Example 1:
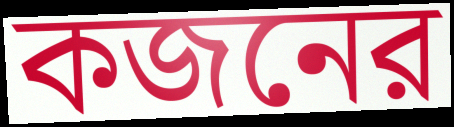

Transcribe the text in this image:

কজনের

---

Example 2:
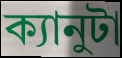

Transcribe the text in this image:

ক্যানুটা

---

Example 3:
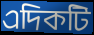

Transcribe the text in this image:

এদিকটি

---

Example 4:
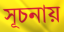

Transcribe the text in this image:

সূচনায়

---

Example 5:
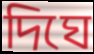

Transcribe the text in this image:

দিঘে